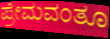
ಪ್ರೇಮವಂತೂ